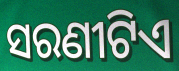
ସରଣୀଟିଏ